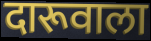
दारूवाला